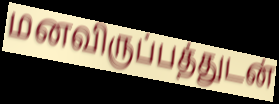
மனவிருப்பத்துடன்